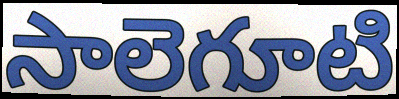
సాలెగూటి